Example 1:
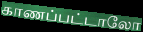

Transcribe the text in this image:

காணப்பட்டாலோ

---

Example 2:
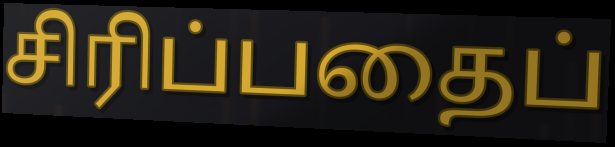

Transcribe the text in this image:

சிரிப்பதைப்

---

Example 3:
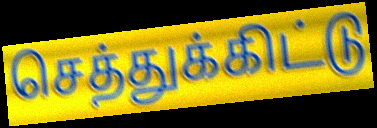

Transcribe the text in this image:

செத்துக்கிட்டு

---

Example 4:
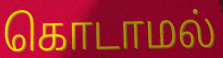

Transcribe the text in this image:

கொடாமல்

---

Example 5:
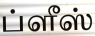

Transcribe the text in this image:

ப்ளீஸ்